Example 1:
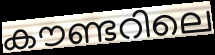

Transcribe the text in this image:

കൗണ്ടറിലെ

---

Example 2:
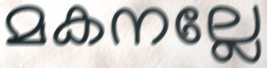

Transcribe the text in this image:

മകനല്ലേ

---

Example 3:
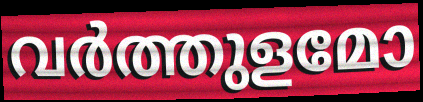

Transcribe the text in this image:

വർത്തുളമോ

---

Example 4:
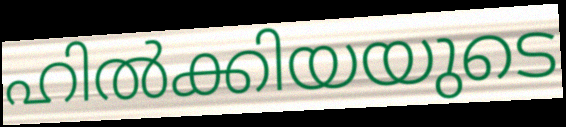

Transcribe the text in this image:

ഹിൽക്കിയയുടെ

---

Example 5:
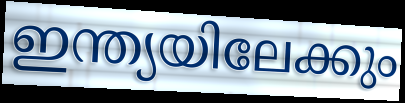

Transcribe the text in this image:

ഇന്ത്യയിലേക്കും